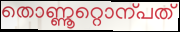
തൊണ്ണൂറ്റൊന്പത്